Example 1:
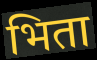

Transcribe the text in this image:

भिता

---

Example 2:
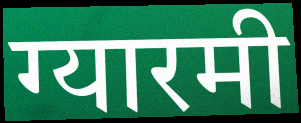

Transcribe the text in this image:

ग्यारमी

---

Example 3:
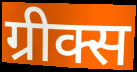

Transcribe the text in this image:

ग्रीक्स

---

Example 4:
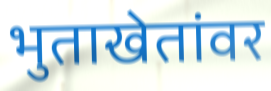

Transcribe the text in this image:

भुताखेतांवर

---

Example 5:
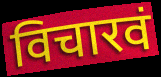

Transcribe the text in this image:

विचारवं